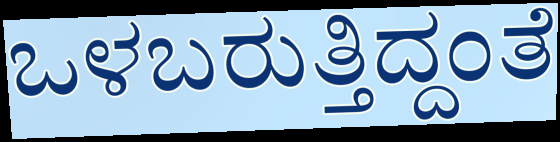
ಒಳಬರುತ್ತಿದ್ದಂತೆ